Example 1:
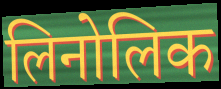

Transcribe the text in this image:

लिनोलिक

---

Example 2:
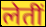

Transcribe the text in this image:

लेतीं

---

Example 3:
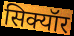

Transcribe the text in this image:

सिक्यॉर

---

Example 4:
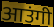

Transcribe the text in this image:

आउंगी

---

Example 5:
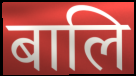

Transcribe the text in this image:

बालि